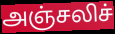
அஞ்சலிச்